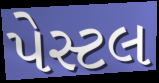
પેસ્ટલ